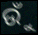
ଉୁଁ